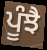
ਪੂੰਝੈ